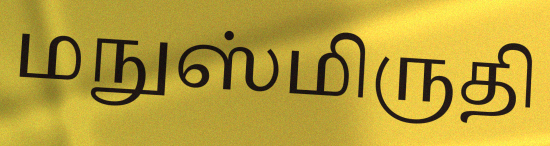
மநுஸ்மிருதி